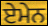
ਏਮੇਨ